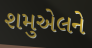
શમુએલને